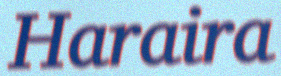
Haraira